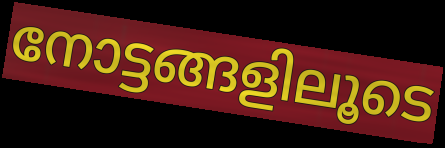
നോട്ടങ്ങളിലൂടെ